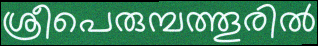
ശ്രീപെരുമ്പത്തൂരിൽ